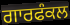
ਗਾਰਫੰਕਲ